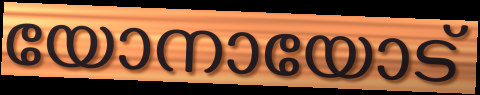
യോനായോട്